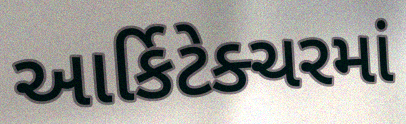
આર્કિટેક્ચરમાં